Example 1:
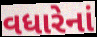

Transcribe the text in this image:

વધારેનાં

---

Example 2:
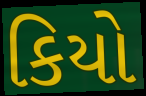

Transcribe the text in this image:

કિયો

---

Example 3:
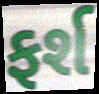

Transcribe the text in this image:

ફર્શ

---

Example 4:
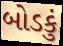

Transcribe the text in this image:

બોડકું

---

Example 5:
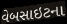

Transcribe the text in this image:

વેબસાઇટના